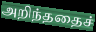
அறிந்ததைச்